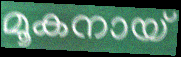
മൂകനായ്